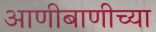
आणीबाणीच्या